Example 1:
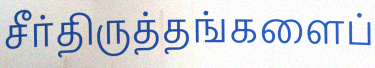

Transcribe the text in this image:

சீர்திருத்தங்களைப்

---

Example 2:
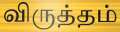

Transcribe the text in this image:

விருத்தம்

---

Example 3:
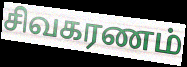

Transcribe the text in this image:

சிவகரணம்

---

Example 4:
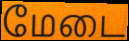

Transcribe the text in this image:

மேடை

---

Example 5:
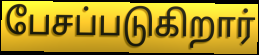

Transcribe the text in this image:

பேசப்படுகிறார்